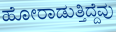
ಹೋರಾಡುತ್ತಿದ್ದೆವು